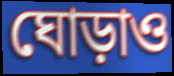
ঘোড়াও